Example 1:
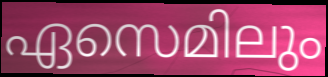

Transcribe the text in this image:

ഏസെമിലും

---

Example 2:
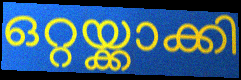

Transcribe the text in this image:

ഒറ്റയ്ക്കാക്കി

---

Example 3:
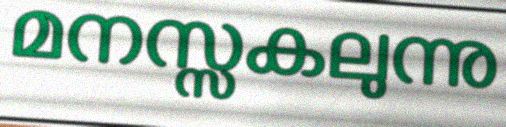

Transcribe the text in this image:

മനസ്സകലുന്നു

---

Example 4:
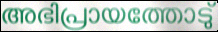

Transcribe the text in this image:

അഭിപ്രായത്തോടു്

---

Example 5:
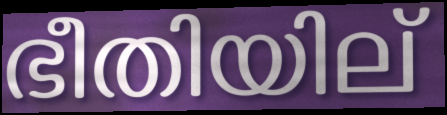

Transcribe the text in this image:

ഭീതിയില്